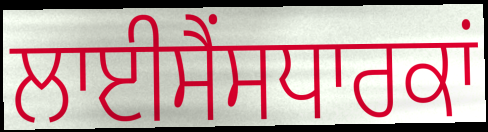
ਲਾਈਸੈਂਸਧਾਰਕਾਂ